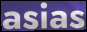
asias